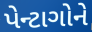
પેન્ટાગોને